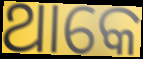
ଥାକେ